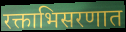
रक्ताभिसरणात